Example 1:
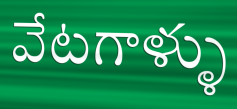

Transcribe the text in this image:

వేటగాళ్ళు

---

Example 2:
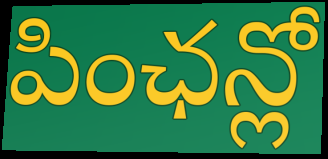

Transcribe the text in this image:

పింఛన్లో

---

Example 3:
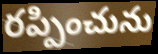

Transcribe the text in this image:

రప్పించును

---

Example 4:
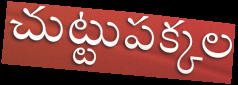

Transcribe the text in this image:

చుట్టుపక్కల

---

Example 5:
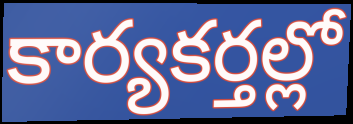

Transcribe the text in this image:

కార్యకర్తల్లో